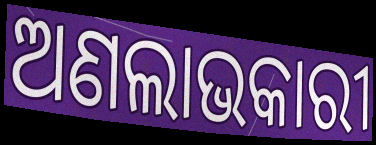
ଅଣଲାଭକାରୀ